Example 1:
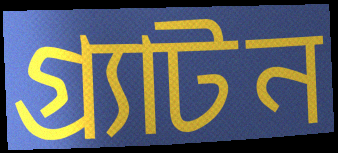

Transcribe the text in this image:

গ্র্যাটন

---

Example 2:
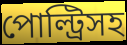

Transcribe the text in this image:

পোল্ট্রিসহ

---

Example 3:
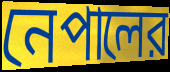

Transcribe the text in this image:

নেপালের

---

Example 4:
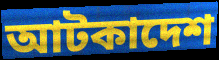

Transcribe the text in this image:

আটকাদেশ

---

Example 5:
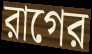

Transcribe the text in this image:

রাগের